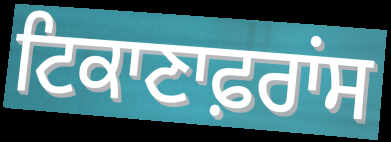
ਟਿਕਾਣਾਫ਼ਰਾਂਸ